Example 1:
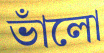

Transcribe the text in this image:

ভাঁলো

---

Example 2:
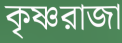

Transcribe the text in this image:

কৃষ্ণরাজা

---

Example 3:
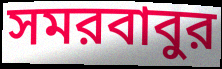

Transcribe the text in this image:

সমরবাবুর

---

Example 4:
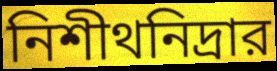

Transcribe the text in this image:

নিশীথনিদ্রার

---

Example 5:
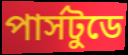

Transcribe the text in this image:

পার্সটুডে